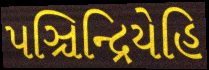
પઞ્ચિન્દ્રિયેહિ